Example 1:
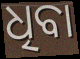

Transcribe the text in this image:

ଧିବା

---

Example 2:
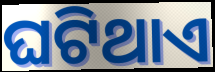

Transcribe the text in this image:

ଘଟିଥାଏ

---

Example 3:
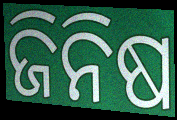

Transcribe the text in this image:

ଜିନିଷ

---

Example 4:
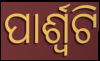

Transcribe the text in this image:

ପାର୍ଶ୍ଵଟି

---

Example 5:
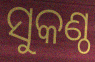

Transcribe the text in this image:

ସୁକଣ୍ଠ